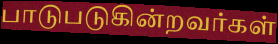
பாடுபடுகின்றவர்கள்